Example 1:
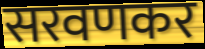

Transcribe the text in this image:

सरवणकर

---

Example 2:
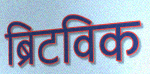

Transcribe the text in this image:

ब्रिटविक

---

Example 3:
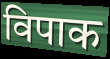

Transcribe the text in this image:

विपाक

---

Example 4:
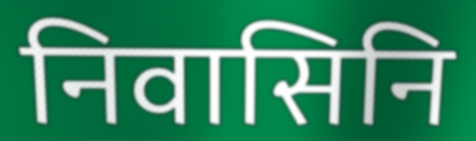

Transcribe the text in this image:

निवासिनि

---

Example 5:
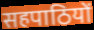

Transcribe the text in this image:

सहपाठियों